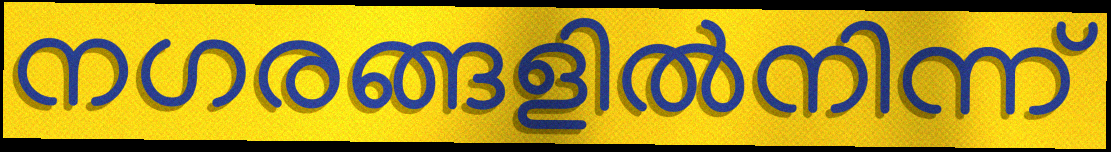
നഗരങ്ങളിൽനിന്ന്